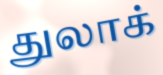
துலாக்